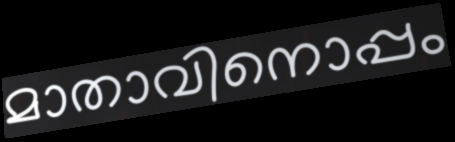
മാതാവിനൊപ്പം